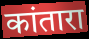
कांतारा